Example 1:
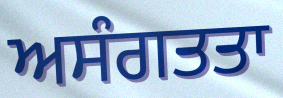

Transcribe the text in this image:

ਅਸੰਗਤਤਾ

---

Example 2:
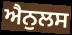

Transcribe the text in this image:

ਐਨੁਲਸ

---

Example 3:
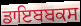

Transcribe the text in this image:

ਡਾਇਬਬਕਸ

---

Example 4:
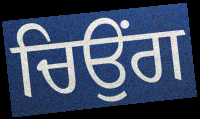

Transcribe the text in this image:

ਚਿਉਂਗ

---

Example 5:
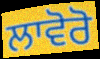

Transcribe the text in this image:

ਲਾਵੋਰੋ